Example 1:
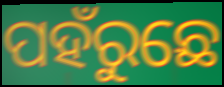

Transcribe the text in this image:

ପହଁରୁଛେ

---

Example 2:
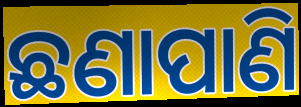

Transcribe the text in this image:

ଛଣାପାଣି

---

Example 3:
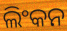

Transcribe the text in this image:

ଲିଂକନ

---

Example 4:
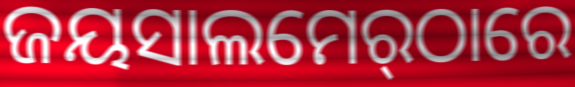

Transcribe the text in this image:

ଜୟସାଲମେର୍‌ଠାରେ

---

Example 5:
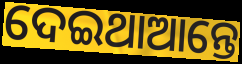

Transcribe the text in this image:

ଦେଇଥାଆନ୍ତେ